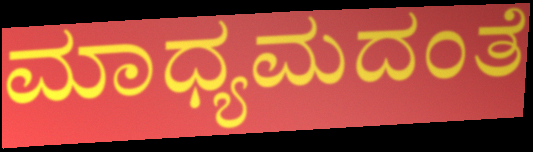
ಮಾಧ್ಯಮದಂತೆ